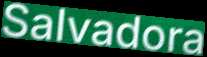
Salvadora